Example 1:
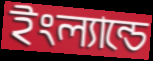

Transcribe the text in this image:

ইংল্যান্ডে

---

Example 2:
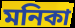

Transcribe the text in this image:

মনিকা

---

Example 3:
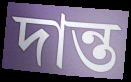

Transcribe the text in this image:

দান্ত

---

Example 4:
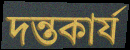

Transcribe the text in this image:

দন্তকার্য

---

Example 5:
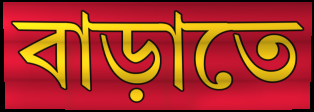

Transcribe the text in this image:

বাড়াতে